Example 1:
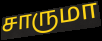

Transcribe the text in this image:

சாருமா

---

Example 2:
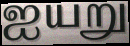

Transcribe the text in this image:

ஐயறு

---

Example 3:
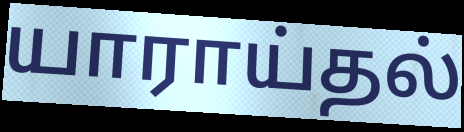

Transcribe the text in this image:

யாராய்தல்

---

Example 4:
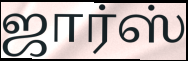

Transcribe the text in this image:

ஜார்ஸ்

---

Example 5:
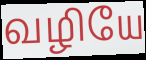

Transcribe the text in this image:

வழியே